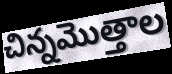
చిన్నమొత్తాల